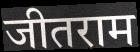
जीतराम